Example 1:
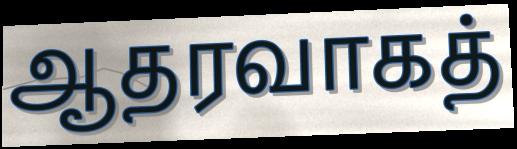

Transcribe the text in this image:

ஆதரவாகத்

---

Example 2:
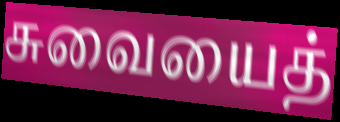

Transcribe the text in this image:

சுவையைத்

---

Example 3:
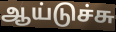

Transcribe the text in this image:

ஆய்டுச்சு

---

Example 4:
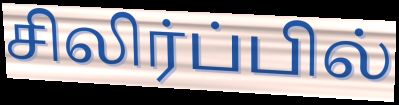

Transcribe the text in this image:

சிலிர்ப்பில்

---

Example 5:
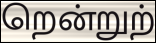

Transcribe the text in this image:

றென்றுற்